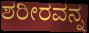
ಶರೀರವನ್ನ